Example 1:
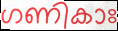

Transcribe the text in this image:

ഗണികാഃ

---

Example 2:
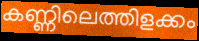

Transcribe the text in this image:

കണ്ണിലെത്തിളക്കം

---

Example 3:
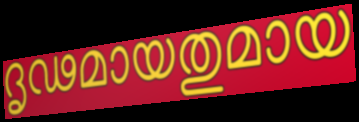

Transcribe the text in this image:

ദൃഢമായതുമായ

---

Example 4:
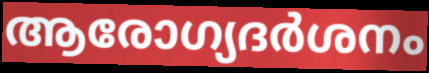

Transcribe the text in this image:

ആരോഗ്യദർശനം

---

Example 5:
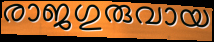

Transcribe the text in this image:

രാജഗുരുവായ